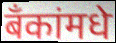
बँकांमधे